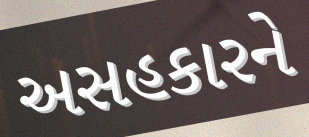
અસહકારને